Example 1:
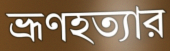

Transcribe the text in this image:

ভ্রূণহত্যার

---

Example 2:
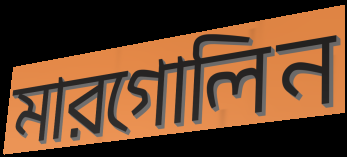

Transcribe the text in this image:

মারগোলিন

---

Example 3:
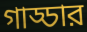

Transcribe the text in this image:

গাড্ডার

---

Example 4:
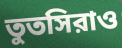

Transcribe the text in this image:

তুতসিরাও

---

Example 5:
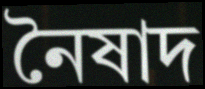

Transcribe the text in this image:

নৈষাদ